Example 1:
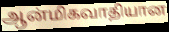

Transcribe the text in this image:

ஆன்மிகவாதியான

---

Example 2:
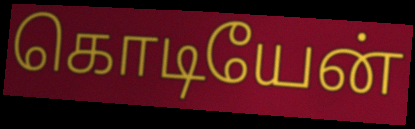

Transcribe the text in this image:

கொடியேன்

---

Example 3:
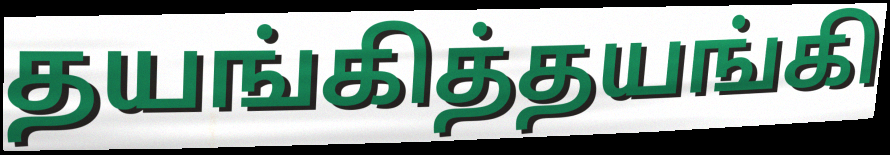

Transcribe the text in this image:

தயங்கித்தயங்கி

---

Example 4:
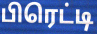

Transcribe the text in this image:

பிரெட்டி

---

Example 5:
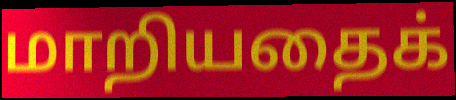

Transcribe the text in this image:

மாறியதைக்